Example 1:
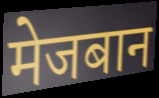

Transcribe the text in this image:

मेजबान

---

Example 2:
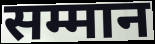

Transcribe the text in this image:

सम्मान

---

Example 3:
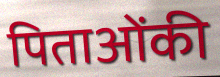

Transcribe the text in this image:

पिताओंकी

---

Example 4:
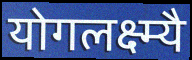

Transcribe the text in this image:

योगलक्ष्म्यै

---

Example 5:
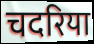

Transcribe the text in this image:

चदरिया